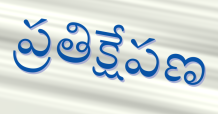
ప్రతిక్షేపణ